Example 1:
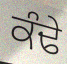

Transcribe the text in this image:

ਕੰਢੇ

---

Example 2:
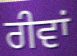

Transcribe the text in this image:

ਰੀਵਾਂ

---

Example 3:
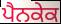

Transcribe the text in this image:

ਪੈਨਕੇਕ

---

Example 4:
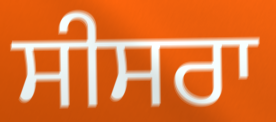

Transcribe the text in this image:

ਸੀਸਰਾ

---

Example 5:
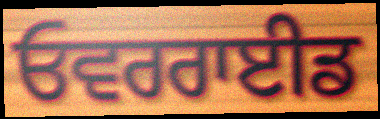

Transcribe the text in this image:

ਓਵਰਰਾਈਡ